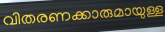
വിതരണക്കാരുമായുള്ള